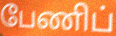
பேணிப்